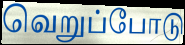
வெறுப்போடு